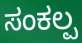
ಸಂಕಲ್ಪ